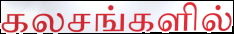
கலசங்களில்